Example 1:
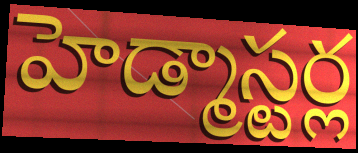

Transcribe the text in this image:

హెడ్మాస్టర్ల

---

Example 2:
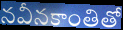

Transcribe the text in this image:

నవీనకాంతితో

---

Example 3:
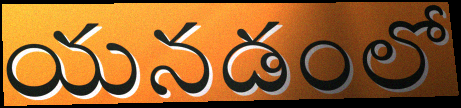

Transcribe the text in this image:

యనడంలో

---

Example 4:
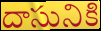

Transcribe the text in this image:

దాసునికి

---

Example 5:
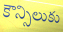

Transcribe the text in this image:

కౌన్సిలుకు